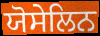
ਯੋਸੇਲਿਨ